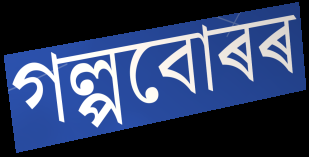
গল্পবোৰৰ